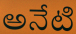
అనేటి